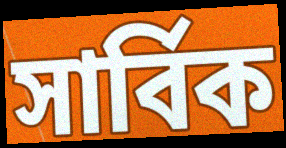
সার্বিক